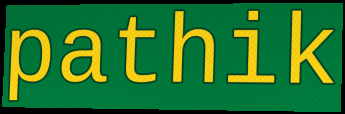
pathik